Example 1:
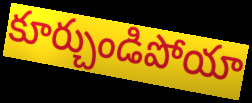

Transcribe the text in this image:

కూర్చుండిపోయా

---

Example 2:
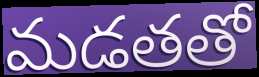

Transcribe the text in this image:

మడతతో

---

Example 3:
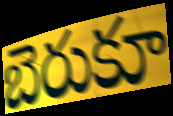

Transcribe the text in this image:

బెరుకూ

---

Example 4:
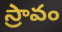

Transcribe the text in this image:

స్రావం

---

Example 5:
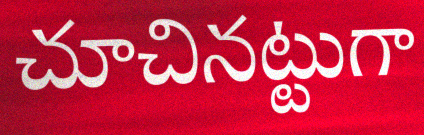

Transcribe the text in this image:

చూచినట్టుగా